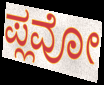
ಪ್ಲವೋ